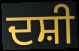
ਦਸ਼ੀ